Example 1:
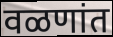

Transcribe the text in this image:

वळणांत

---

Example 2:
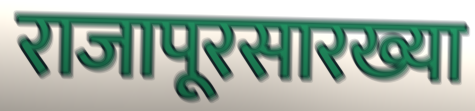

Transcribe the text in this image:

राजापूरसारख्या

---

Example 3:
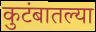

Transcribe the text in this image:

कुटंबातल्या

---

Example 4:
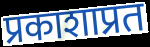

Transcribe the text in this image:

प्रकाशाप्रत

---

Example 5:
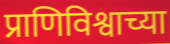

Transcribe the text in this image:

प्राणिविश्वाच्या